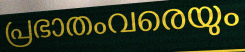
പ്രഭാതംവരെയും